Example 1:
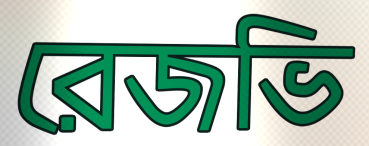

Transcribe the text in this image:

রেজভি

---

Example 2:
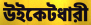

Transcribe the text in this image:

উইকেটধারী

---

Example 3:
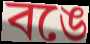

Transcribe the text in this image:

বঙে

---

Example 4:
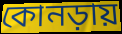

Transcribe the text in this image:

কোনড়ায়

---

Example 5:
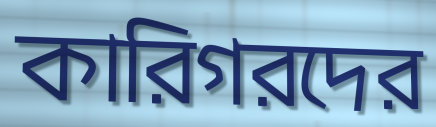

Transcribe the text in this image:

কারিগরদের